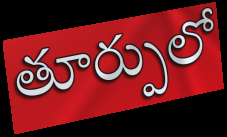
తూర్పులో